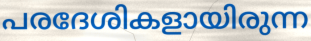
പരദേശികളായിരുന്ന